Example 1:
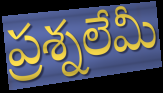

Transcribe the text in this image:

ప్రశ్నలేమీ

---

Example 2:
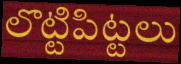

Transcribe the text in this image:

లొట్టిపిట్టలు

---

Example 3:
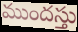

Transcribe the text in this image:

ముందస్తు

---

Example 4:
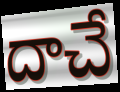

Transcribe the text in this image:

దాచే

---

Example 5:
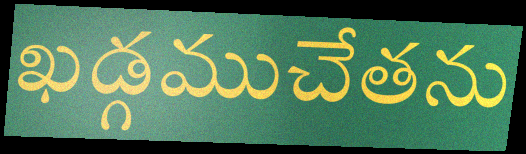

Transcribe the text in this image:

ఖడ్గముచేతను